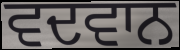
ਵਦਵਾਨ